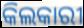
କିଲକାରୀ